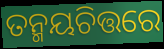
ତନ୍ମୟଚିତ୍ତରେ